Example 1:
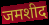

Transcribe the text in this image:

जमशीद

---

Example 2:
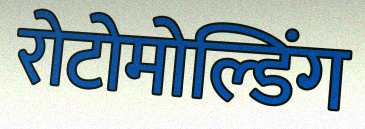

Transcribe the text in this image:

रोटोमोल्डिंग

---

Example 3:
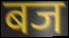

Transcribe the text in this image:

बज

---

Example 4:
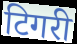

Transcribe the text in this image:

टिगरी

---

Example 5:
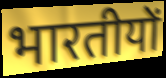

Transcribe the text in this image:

भारतीयों